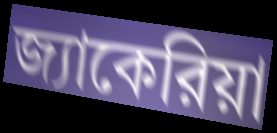
জ্যাকেরিয়া